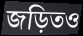
জড়িতও